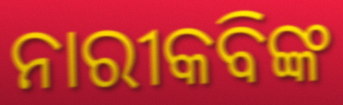
ନାରୀକବିଙ୍କ